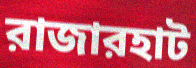
রাজারহাট